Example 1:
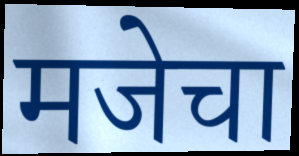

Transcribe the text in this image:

मजेचा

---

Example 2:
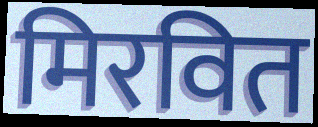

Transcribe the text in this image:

मिरवित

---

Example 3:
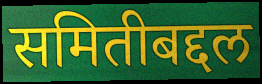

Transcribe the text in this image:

समितीबद्दल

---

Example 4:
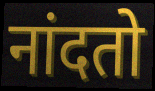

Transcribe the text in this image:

नांदतो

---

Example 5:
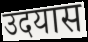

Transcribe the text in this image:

उदयास